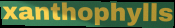
xanthophylls